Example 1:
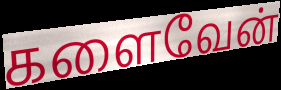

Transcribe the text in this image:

களைவேன்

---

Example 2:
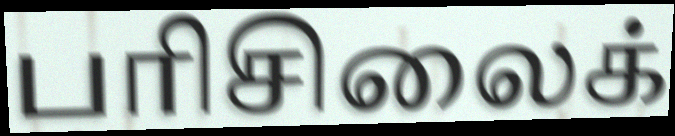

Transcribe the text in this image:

பரிசிலைக்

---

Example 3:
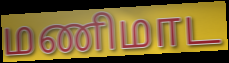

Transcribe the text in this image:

மணிமாட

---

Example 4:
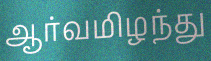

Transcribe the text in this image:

ஆர்வமிழந்து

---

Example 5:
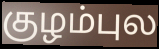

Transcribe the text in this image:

குழம்புல